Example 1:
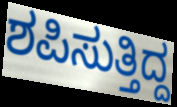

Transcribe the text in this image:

ಶಪಿಸುತ್ತಿದ್ದ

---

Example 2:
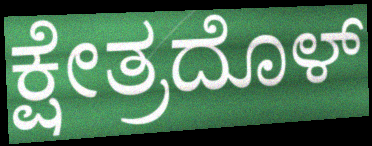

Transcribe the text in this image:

ಕ್ಷೇತ್ರದೊಳ್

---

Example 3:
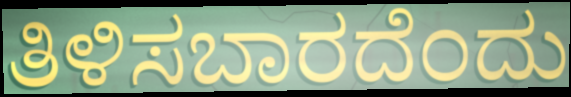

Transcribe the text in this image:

ತಿಳಿಸಬಾರದೆಂದು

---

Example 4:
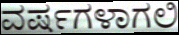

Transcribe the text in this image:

ವರ್ಷಗಳಾಗಲಿ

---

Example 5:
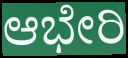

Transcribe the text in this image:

ಆಭೇರಿ